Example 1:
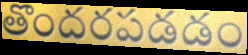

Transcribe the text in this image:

తొందరపడడం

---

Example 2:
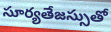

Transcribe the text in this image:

సూర్యతేజస్సుతో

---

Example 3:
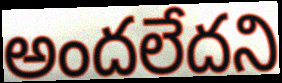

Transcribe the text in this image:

అందలేదని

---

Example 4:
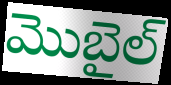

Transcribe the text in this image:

మొబైల్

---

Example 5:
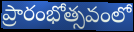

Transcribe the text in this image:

ప్రారంభోత్సవంలో